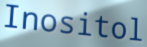
Inositol